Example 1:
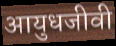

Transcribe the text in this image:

आयुधजीवी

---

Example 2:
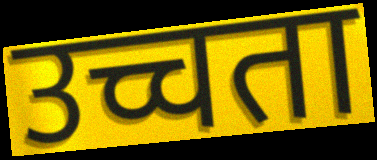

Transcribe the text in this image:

उच्चता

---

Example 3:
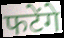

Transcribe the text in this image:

फटेंगे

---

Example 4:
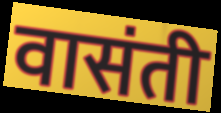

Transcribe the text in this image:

वासंती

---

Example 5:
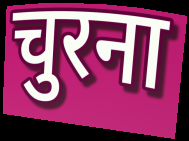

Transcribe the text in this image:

चुरना